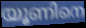
യൂണിനെ